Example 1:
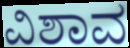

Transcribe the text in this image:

ವಿಶಾವ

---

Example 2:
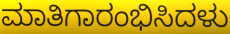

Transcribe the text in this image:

ಮಾತಿಗಾರಂಭಿಸಿದಳು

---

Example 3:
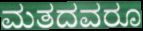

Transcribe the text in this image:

ಮತದವರೂ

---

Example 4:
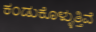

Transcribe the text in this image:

ಕಂಡುಕೊಳ್ಳುತ್ತಿವೆ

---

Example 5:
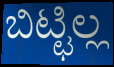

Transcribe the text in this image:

ಬಿಟ್ಟಿಲ್ಲ